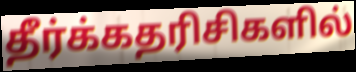
தீர்க்கதரிசிகளில்